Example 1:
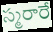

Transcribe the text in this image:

స్మరారే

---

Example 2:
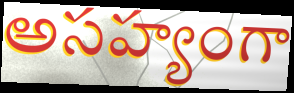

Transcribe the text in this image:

అసహ్యంగా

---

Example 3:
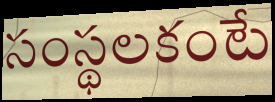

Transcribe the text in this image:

సంస్థలకంటే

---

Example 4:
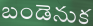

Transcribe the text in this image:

బండెనుక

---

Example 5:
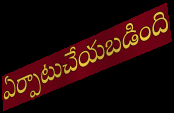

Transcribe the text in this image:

ఏర్పాటుచేయబడింది